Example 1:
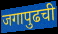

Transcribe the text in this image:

जगापुढची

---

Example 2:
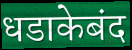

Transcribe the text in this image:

धडाकेबंद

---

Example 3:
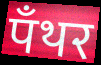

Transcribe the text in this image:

पँथर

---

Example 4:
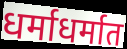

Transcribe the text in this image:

धर्माधर्मात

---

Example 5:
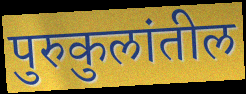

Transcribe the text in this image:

पुरुकुलांतील